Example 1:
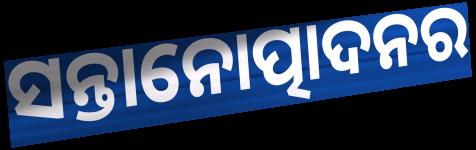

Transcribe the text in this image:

ସନ୍ତାନୋତ୍ପାଦନର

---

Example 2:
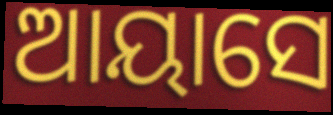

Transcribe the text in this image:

ଆୟାସେ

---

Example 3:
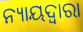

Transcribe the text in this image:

ନ୍ୟାୟଦ୍ୱାରା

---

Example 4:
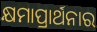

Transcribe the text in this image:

କ୍ଷମାପ୍ରାର୍ଥନାର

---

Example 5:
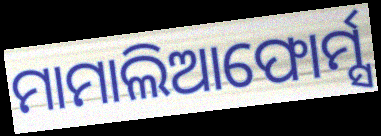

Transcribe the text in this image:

ମାମାଲିଆଫୋର୍ମ୍ସ